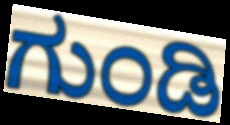
ಗುಂಡಿ